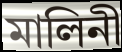
মালিনী